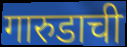
गारुडाची